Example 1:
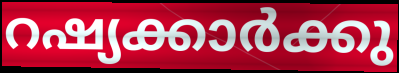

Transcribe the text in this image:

റഷ്യക്കാർക്കു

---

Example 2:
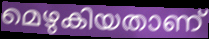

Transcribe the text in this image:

മെഴുകിയതാണ്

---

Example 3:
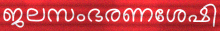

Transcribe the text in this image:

ജലസംഭരണശേഷി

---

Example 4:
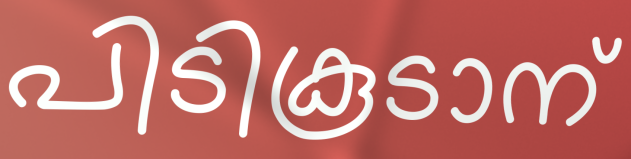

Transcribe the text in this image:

പിടികൂടാന്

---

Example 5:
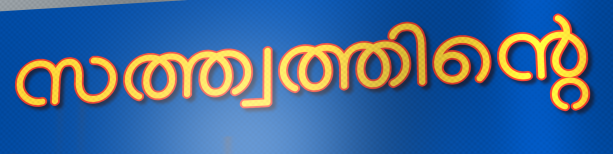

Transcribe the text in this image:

സത്ത്വത്തിന്റെ